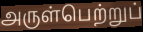
அருள்பெற்றுப்